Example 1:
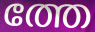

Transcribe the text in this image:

ത്തേ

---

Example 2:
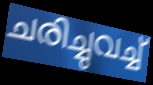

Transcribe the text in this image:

ചരിച്ചുവച്ച്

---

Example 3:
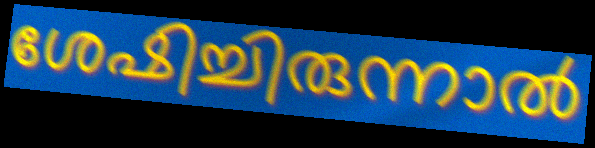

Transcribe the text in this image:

ശേഷിച്ചിരുന്നാൽ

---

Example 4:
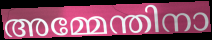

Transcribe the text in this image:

അമ്മേന്തിനാ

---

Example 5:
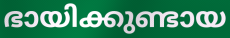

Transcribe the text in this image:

ഭായിക്കുണ്ടായ